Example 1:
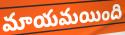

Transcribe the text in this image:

మాయమయింది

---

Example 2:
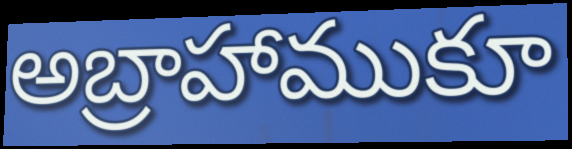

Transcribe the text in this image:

అబ్రాహాముకూ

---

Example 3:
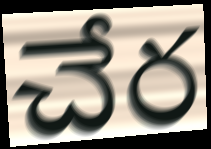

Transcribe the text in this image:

చేర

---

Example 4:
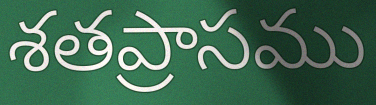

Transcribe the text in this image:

శతప్రాసము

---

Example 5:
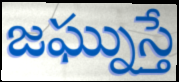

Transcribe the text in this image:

జఘ్నుస్తే